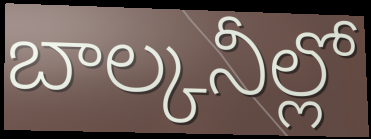
బాల్కనీల్లో